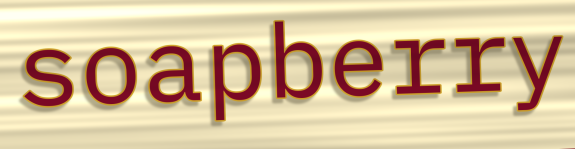
soapberry